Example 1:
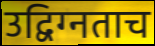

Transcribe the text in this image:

उद्विग्नताच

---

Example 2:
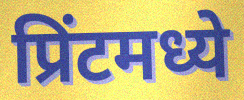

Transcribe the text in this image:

प्रिंटमध्ये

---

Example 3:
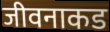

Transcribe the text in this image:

जीवनाकड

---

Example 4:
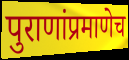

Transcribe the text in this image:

पुराणांप्रमाणेच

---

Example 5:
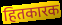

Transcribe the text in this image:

हितकारक